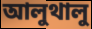
আলুথালু